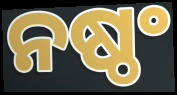
ନଷ୍ଠଂ